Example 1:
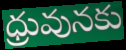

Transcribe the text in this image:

ధ్రువునకు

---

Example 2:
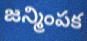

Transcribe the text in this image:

జన్మింపక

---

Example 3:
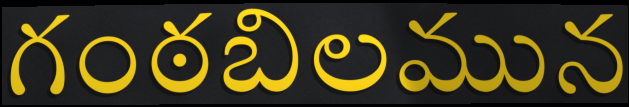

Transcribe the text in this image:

గంఠబిలమున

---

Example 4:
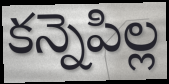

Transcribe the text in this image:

కన్నెపిల్ల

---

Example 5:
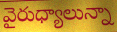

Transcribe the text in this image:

వైరుధ్యాలున్నా